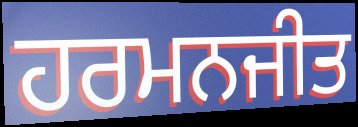
ਹਰਮਨਜੀਤ